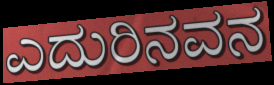
ಎದುರಿನವನ